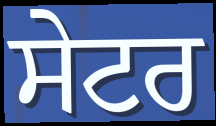
ਸੇਟਰ